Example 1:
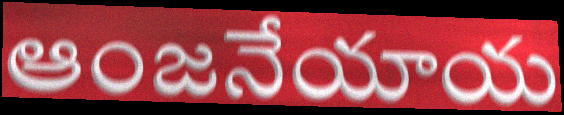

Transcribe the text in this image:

ఆంజనేయాయ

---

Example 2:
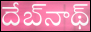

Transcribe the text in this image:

దేబ్‌నాథ్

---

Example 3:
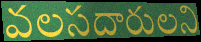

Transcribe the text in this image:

వలసదారులని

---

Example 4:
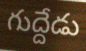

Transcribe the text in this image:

గుద్దేడు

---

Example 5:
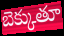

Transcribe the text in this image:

బెక్కుతూ